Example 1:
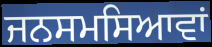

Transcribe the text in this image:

ਜਨਸਮਸਿਆਵਾਂ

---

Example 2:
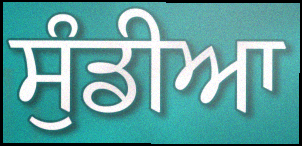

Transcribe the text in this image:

ਸੁੰਡੀਆ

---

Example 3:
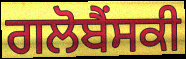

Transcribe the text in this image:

ਗਲੋਬੈਂਸਕੀ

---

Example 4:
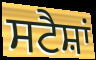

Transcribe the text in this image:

ਸਟੈਸ਼ਾਂ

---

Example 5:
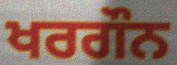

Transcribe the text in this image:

ਖਰਗੌਨ